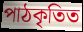
পাঠকৃতিত